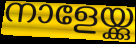
നാളേയ്ക്കു